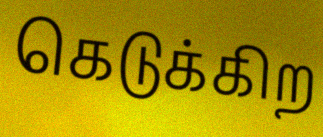
கெடுக்கிற